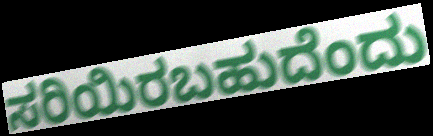
ಸರಿಯಿರಬಹುದೆಂದು